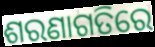
ଶରଣାଗତିରେ